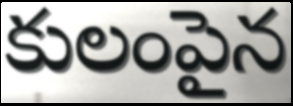
కులంపైన